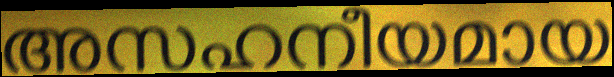
അസഹനീയമായ